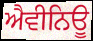
ਐਵੀਨਿਊ